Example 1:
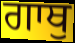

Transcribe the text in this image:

ਗਾਥੁ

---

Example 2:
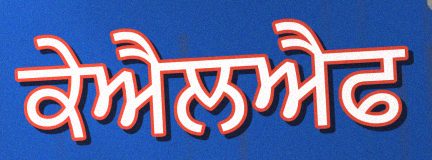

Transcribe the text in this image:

ਕੇਐਲਐਫ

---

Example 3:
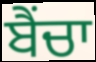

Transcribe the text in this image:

ਬੈਂਚਾ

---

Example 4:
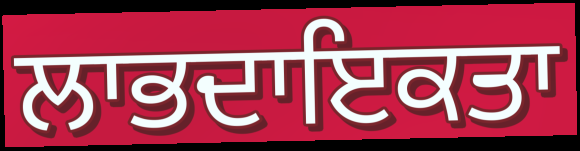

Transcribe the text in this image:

ਲਾਭਦਾਇਕਤਾ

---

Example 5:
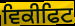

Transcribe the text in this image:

ਵਿਕੀਫਿਟ